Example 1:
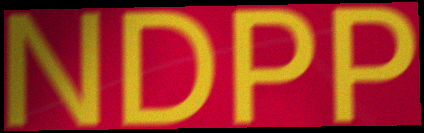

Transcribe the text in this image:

NDPP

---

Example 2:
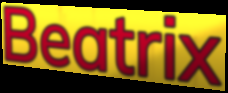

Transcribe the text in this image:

Beatrix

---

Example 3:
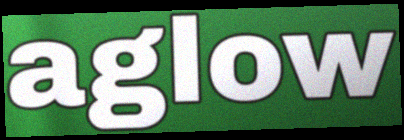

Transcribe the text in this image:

aglow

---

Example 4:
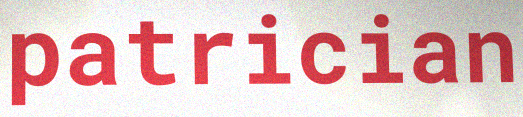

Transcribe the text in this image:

patrician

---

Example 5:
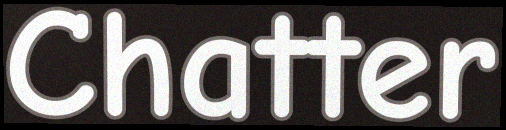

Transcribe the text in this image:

Chatter